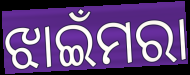
ଝାଇଁମରା